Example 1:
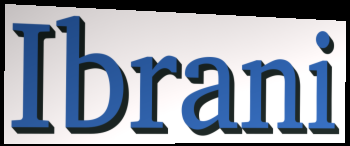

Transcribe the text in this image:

Ibrani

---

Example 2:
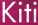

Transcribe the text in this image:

Kiti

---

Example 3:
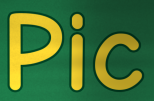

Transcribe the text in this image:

Pic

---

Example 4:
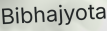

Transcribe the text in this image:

Bibhajyota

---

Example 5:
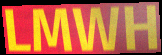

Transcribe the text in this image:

LMWH